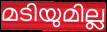
മടിയുമില്ല